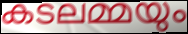
കടലമ്മയും